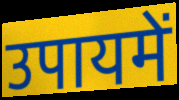
उपायमें